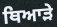
ਥਿਆੜੇ